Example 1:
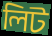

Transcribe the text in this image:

লিট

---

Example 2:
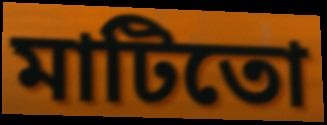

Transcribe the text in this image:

মাটিতো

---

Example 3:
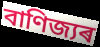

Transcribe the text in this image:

বাণিজ্যৰ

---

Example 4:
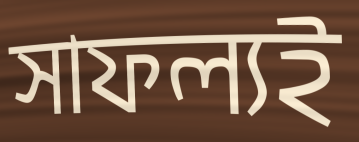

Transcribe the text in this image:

সাফল্যই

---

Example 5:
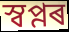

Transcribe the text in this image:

স্বপ্নৰ